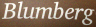
Blumberg